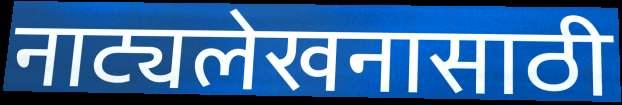
नाट्यलेखनासाठी